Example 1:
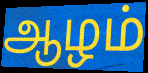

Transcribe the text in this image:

ஆழம்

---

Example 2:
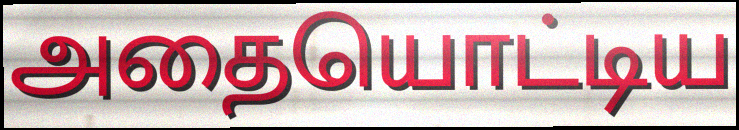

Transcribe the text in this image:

அதையொட்டிய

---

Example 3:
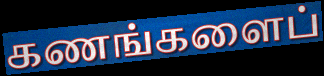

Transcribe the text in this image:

கணங்களைப்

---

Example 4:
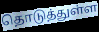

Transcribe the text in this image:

தொடுத்துள்ள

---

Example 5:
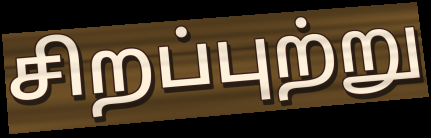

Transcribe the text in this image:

சிறப்புற்று